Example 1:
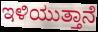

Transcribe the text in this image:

ಇಳಿಯುತ್ತಾನೆ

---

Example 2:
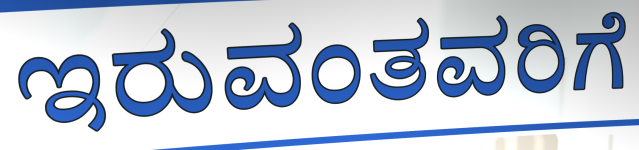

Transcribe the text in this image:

ಇರುವಂತವರಿಗೆ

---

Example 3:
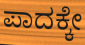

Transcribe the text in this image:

ಪಾದಕ್ಕೇ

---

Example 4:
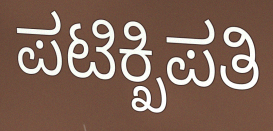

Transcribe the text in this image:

ಪಟಿಕ್ಖಿಪತಿ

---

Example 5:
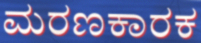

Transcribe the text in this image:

ಮರಣಕಾರಕ